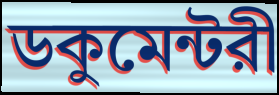
ডকুমেন্টরী